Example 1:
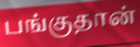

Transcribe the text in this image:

பங்குதான்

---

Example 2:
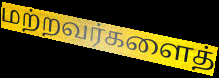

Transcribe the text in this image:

மற்றவர்களைத்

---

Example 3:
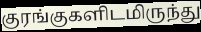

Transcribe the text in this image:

குரங்குகளிடமிருந்து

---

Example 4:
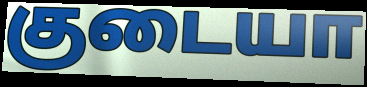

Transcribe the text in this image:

குடையா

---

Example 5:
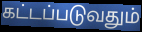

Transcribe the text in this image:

கட்டப்படுவதும்